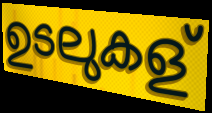
ഉടലുകള്